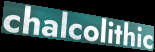
chalcolithic